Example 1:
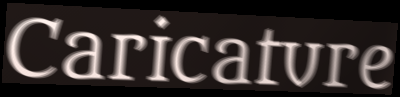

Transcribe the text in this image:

Caricature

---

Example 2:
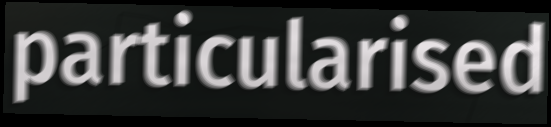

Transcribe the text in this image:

particularised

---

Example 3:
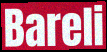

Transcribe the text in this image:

Bareli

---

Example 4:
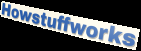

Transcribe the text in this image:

Howstuffworks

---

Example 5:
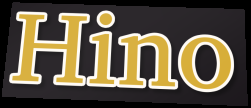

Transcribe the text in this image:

Hino